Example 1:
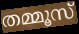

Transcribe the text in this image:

തമ്മൂസ്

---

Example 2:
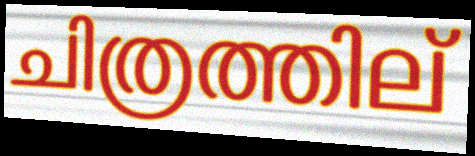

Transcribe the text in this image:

ചിത്രത്തില്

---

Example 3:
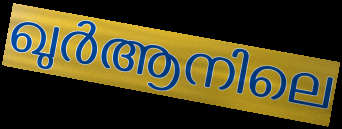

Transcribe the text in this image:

ഖുർആനിലെ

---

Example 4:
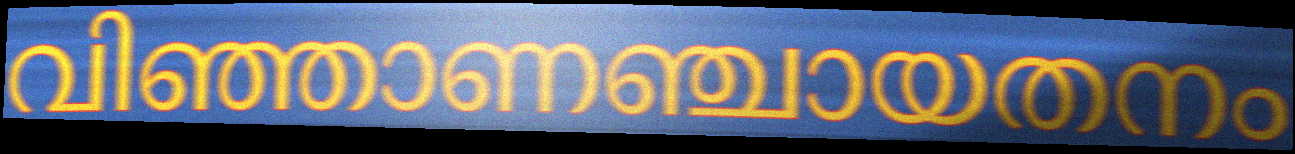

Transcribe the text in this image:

വിഞ്ഞാണഞ്ചായതനം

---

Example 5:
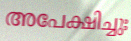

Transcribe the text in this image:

അപേക്ഷിച്ചുഃ